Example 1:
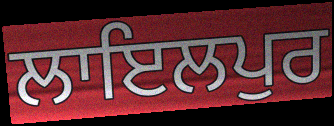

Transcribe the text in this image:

ਲਾਇਲਪੁਰ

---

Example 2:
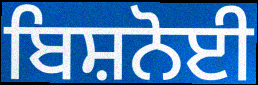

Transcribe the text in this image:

ਬਿਸ਼ਨੋਈ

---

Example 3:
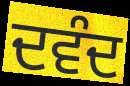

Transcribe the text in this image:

ਦਵੰਦ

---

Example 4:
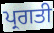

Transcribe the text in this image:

ਪ੍ਰਗਤੀ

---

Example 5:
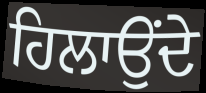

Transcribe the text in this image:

ਹਿਲਾਉਂਦੇ